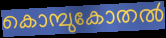
കൊമ്പുകോതൽ